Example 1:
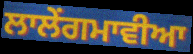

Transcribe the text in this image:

ਲਾਲੇਂਗਮਾਵੀਆ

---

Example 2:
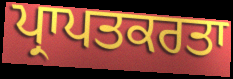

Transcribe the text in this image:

ਪ੍ਰਾਪਤਕਰਤਾ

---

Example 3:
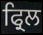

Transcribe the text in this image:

ਫ੍ਰਿਲ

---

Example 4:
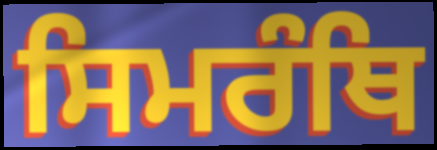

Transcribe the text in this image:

ਸਿਮਰੰਥਿ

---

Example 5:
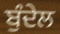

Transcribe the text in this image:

ਬੁੰਦੇਲ